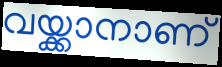
വയ്ക്കാനാണ്